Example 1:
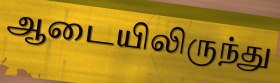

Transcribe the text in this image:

ஆடையிலிருந்து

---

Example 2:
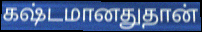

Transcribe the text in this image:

கஷ்டமானதுதான்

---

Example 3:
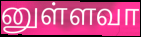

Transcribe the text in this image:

னுள்ளவா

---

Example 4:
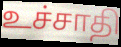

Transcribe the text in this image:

உச்சாதி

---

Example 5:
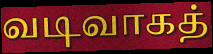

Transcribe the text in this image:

வடிவாகத்